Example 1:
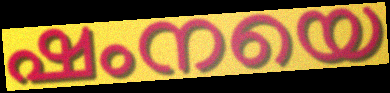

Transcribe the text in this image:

ഷംനയെ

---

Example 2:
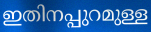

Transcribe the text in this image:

ഇതിനപ്പുറമുള്ള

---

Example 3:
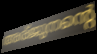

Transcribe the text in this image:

അര്ജുനന്റെ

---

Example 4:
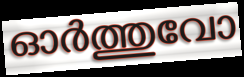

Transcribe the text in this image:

ഓർത്തുവോ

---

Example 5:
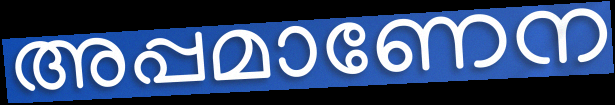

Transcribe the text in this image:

അപ്പമാണേന